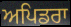
ਅਪਿਡਰਾ